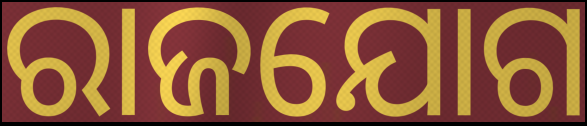
ରାଜଯୋଗ